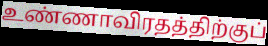
உண்ணாவிரதத்திற்குப்